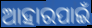
ଆହାରପାଇଁ